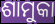
ଶାମୁକା